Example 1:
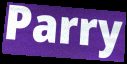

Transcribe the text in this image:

Parry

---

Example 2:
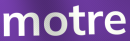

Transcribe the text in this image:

motre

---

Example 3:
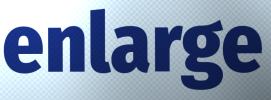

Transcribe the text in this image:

enlarge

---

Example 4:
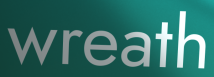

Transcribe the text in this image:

wreath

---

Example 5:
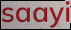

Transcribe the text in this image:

saayi